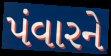
પંવારને